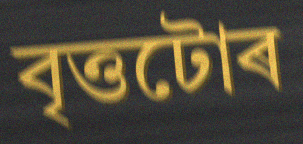
বৃত্তটোৰ